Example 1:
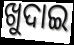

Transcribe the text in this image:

ଖୁଦାଇ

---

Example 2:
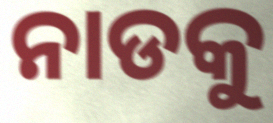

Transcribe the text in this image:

ନାଡକୁ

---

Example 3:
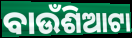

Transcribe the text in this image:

ବାଉଁଶିଆଟା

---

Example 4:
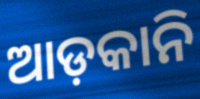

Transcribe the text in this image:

ଆଡ଼କାନି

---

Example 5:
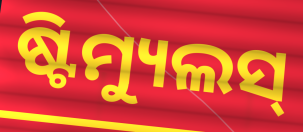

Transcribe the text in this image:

ଷ୍ଟିମ୍ୟୁଲସ୍